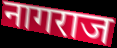
नागराज